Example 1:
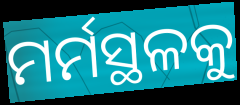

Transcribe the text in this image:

ମର୍ମସ୍ଥଳକୁ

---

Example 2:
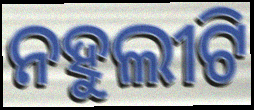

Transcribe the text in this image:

ନହୁଲୀଟି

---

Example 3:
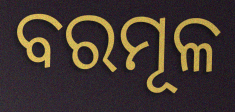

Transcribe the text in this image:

ବରମୂଳ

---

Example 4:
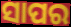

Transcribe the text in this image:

ସାପର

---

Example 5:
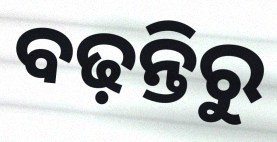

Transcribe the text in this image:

ବଢ଼ନ୍ତିରୁ